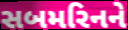
સબમરિનને